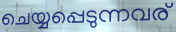
ചെയ്യപ്പെടുന്നവര്